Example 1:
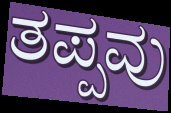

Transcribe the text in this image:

ತಪ್ಪವು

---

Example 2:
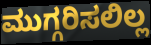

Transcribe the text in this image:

ಮುಗ್ಗರಿಸಲಿಲ್ಲ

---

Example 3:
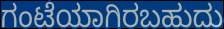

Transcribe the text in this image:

ಗಂಟೆಯಾಗಿರಬಹುದು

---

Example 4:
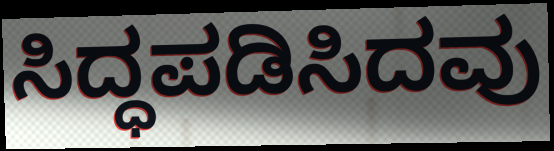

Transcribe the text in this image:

ಸಿದ್ಧಪಡಿಸಿದವು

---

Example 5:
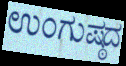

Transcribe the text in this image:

ಉಂಗುಷ್ಠದ